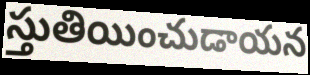
స్తుతియించుడాయన